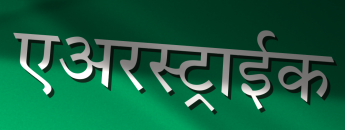
एअरस्ट्राईक